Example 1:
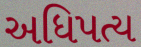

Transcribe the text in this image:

અધિપત્ય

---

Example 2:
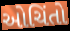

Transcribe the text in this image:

ઓચિંતો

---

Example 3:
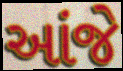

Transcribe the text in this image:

આંજે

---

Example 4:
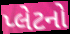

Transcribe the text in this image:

પ્લેટનો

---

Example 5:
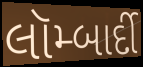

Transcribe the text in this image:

લૉમ્બાર્દી